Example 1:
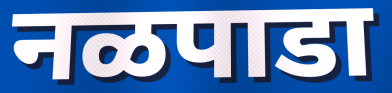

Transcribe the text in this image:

नळपाडा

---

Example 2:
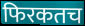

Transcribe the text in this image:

फिरकतच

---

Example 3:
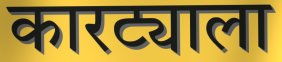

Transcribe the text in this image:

कारट्याला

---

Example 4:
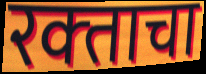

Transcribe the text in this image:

रक्‍ताचा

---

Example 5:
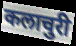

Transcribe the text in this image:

कलाचुरी